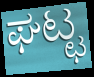
ಘಟ್ಟ